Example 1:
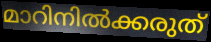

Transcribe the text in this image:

മാറിനിൽക്കരുത്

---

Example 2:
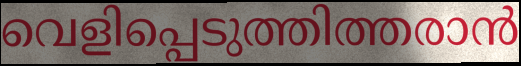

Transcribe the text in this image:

വെളിപ്പെടുത്തിത്തരാൻ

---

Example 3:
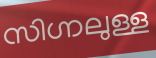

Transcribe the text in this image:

സിഗ്നലുള്ള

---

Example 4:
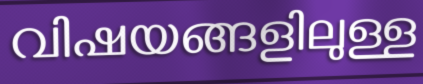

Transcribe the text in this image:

വിഷയങ്ങളിലുള്ള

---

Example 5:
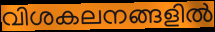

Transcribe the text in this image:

വിശകലനങ്ങളിൽ